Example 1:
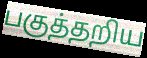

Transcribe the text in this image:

பகுத்தறிய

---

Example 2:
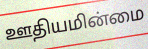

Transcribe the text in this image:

ஊதியமின்மை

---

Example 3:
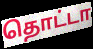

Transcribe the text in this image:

தொட்டா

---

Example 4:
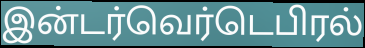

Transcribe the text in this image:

இன்டர்வெர்டெபிரல்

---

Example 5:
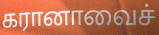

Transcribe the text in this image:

கரானாவைச்